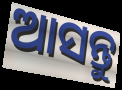
ଆସନ୍ତୁ